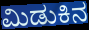
ಮಿಡುಕಿನ